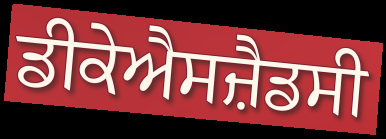
ਡੀਕੇਐਸਜ਼ੈਡਸੀ